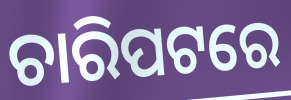
ଚାରିପଟରେ